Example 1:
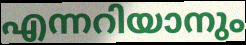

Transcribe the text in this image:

എന്നറിയാനും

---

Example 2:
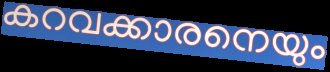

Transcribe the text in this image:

കറവക്കാരനെയും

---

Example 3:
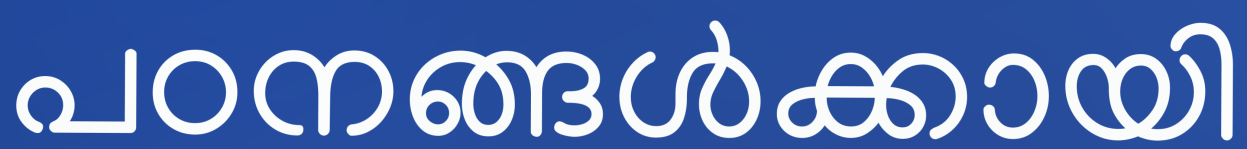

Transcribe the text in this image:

പഠനങ്ങൾക്കായി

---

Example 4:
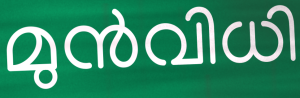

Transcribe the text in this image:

മുൻവിധി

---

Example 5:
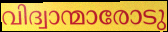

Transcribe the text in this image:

വിദ്വാന്മാരോടു